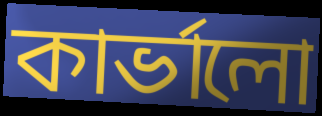
কার্ভালো